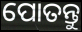
ପୋତନ୍ତୁ